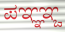
ಪಞ್ಞಞ್ಚ